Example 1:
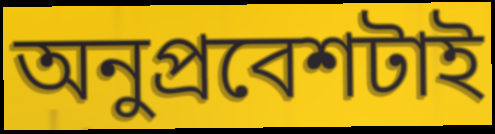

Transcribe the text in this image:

অনুপ্রবেশটাই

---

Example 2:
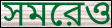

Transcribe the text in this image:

সমরেও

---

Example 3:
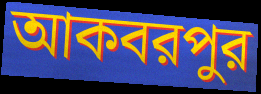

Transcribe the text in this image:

আকবরপুর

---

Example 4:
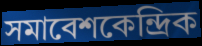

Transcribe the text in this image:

সমাবেশকেন্দ্রিক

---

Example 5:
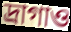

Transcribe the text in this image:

দ্রাগাও